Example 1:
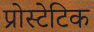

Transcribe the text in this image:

प्रोस्टेटिक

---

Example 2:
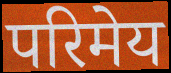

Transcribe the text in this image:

परिमेय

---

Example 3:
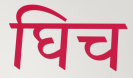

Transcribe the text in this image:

घिच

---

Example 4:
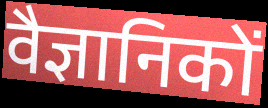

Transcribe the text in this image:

वैज्ञानिकों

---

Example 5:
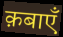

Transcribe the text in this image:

क़बाएँ